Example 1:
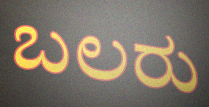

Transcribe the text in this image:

ಬಲರು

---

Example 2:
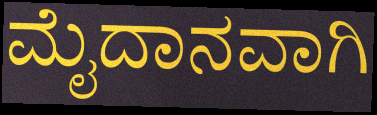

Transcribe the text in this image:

ಮೈದಾನವಾಗಿ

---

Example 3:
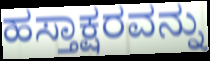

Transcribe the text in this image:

ಹಸ್ತಾಕ್ಷರವನ್ನು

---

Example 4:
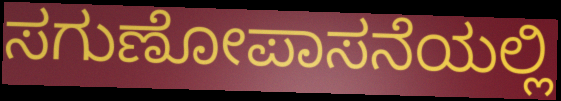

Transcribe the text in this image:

ಸಗುಣೋಪಾಸನೆಯಲ್ಲಿ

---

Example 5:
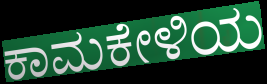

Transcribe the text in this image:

ಕಾಮಕೇಳಿಯ